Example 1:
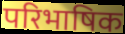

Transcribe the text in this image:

परिभाषिक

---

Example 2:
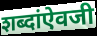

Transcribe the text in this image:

शब्दांऐवजी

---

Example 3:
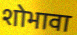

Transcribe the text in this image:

शोभावा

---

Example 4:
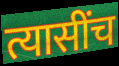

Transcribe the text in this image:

त्यासींच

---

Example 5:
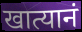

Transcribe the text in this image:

खात्यानं